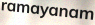
ramayanam